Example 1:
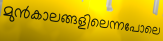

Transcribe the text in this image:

മുൻകാലങ്ങളിലെന്നപോലെ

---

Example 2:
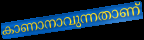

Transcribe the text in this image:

കാണാനാവുന്നതാണ്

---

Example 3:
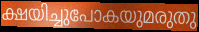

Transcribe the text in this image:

ക്ഷയിച്ചുപോകയുമരുതു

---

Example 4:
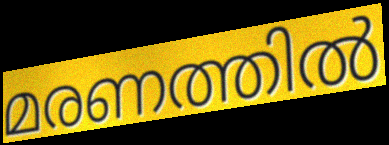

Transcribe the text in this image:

മരണത്തിൽ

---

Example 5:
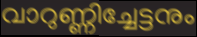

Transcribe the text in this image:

വാറുണ്ണിച്ചേട്ടനും